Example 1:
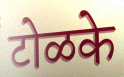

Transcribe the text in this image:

टोळके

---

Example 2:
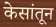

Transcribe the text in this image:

केसांतून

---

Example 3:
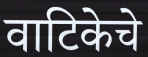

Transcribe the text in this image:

वाटिकेचे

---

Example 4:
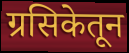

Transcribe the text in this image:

ग्रसिकेतून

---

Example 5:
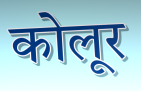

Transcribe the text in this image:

कोलूर